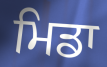
ਮਿਡਾ